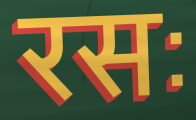
रसः